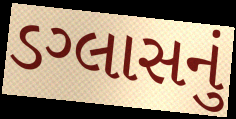
ડગ્લાસનું